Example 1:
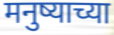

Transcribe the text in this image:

मनुष्याच्या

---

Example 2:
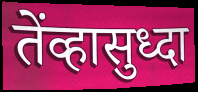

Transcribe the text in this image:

तेंव्हासुध्दा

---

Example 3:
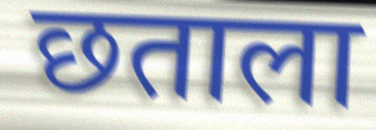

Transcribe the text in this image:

छताला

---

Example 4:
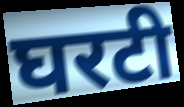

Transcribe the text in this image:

घरटी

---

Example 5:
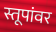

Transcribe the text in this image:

स्तूपांवर